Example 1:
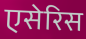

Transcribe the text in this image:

एसेरिस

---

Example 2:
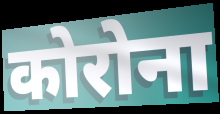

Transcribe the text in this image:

कोरोना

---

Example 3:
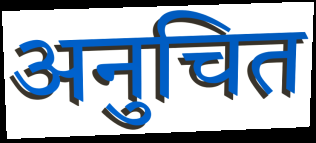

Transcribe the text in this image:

अनुचित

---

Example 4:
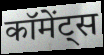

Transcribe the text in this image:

कॉमेंट्स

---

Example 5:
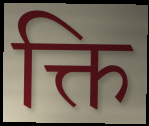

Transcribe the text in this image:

क्ति